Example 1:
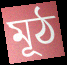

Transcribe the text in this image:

মূঠ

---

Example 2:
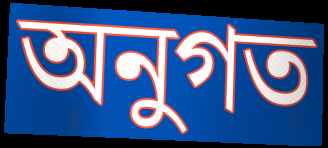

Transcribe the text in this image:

অনুগত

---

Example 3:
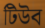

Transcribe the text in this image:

টিউব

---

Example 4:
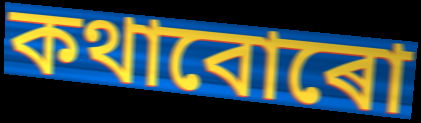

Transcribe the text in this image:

কথাবোৰো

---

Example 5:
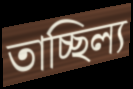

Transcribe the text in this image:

তাচ্ছিল্য